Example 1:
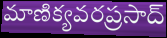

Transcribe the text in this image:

మాణిక్యవరప్రసాద్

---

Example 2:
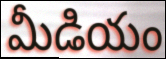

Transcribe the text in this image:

మీడియం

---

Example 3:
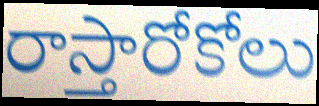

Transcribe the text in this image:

రాస్తారోకోలు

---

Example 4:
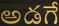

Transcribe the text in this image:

అడగే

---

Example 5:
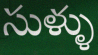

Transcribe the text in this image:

సుళ్ళు